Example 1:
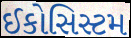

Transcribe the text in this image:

ઈકોસિસ્ટમ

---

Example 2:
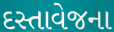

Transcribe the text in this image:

દસ્તાવેજના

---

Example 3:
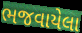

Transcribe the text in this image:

ભજવાયેલા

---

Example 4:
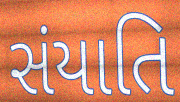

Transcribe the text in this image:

સંયાતિ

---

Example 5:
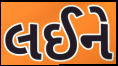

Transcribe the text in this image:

લઈને